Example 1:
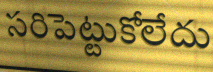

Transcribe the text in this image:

సరిపెట్టుకోలేదు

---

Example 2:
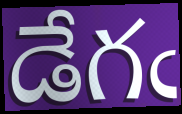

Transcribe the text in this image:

డేగఁ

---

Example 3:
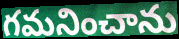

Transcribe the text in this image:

గమనించాను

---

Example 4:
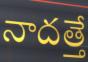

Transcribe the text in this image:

నాదత్తే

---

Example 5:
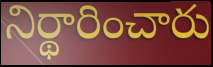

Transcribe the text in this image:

నిర్థారించారు